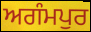
ਅਗੰਮਪੁਰ